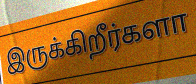
இருக்கிறீர்களா